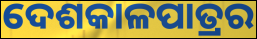
ଦେଶକାଳପାତ୍ରର